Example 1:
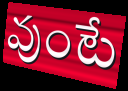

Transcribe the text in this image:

వుంటే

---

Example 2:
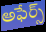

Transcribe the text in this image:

అఫేర్స్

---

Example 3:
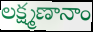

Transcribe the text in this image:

లక్ష్మణానాం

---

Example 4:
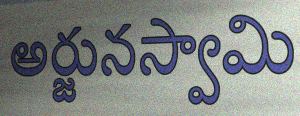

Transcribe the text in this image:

అర్జునస్వామి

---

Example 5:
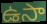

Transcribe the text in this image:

ఉసా